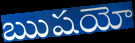
ఋషయో